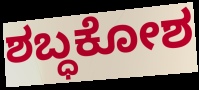
ಶಬ್ಧಕೋಶ